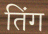
तिंग